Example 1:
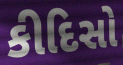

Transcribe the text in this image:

કીદિસો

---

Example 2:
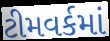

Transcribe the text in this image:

ટીમવર્કમાં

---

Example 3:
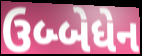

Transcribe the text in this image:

ઉબ્બેધેન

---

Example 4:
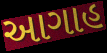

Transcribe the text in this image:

આગાહ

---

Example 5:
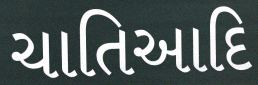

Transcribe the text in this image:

ચાતિઆદિ